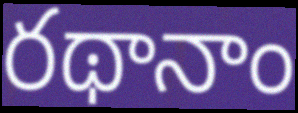
రథానాం